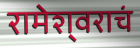
रामेश्वराचं